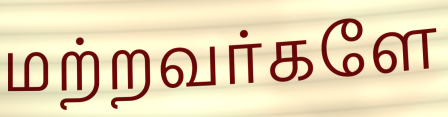
மற்றவர்களே